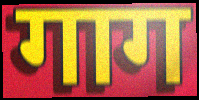
गाग